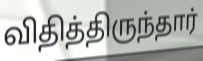
விதித்திருந்தார்